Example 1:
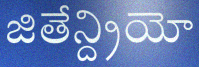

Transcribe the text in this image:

జితేన్ద్రియో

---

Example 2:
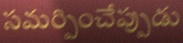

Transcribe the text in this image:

సమర్పించేప్పుడు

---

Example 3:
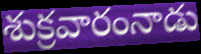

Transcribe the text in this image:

శుక్రవారంనాడు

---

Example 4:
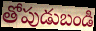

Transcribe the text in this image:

తోపుడుబండి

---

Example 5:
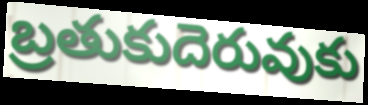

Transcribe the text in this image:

బ్రతుకుదెరువుకు